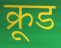
क्रूड